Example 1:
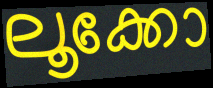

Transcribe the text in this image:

ലൂക്കോ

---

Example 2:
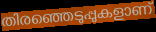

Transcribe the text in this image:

തിരഞ്ഞെടുപ്പുകളാണ്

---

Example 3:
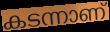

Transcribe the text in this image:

കടന്നാണ്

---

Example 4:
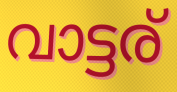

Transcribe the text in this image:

വാട്ടര്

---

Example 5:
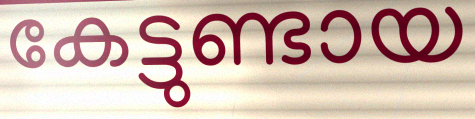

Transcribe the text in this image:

കേട്ടുണ്ടായ